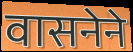
वासनेने